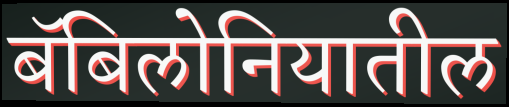
बॅबिलोनियातील